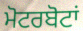
ਮੋਟਰਬੋਟਾਂ